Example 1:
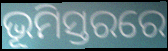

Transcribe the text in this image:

ଭୂମିସ୍ତରରେ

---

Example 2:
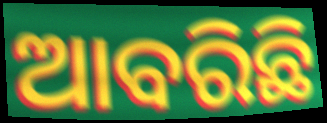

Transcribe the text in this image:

ଆବରିଛି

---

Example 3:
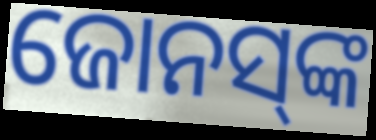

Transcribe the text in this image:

ଜୋନସ୍‌ଙ୍କ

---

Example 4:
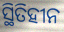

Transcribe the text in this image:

ସ୍ଥିତିହୀନ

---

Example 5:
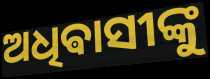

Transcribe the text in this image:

ଅଧିଵାସୀଙ୍କୁ